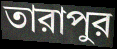
তারাপুর